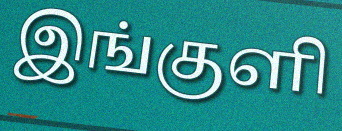
இங்குளி